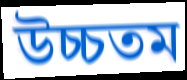
উচ্চতম